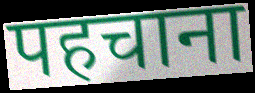
पहचाना